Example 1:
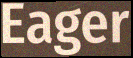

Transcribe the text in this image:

Eager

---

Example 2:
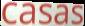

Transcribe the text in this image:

casas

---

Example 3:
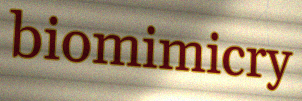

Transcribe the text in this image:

biomimicry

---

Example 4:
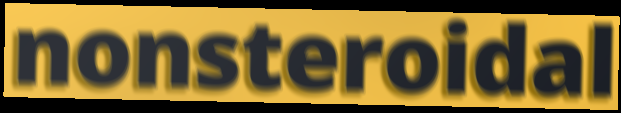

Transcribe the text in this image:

nonsteroidal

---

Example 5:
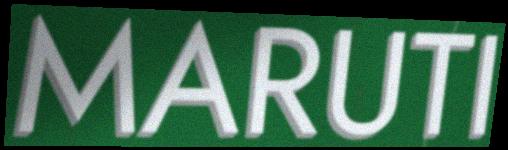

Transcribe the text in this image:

MARUTI